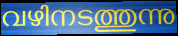
വഴിനടത്തുന്നു